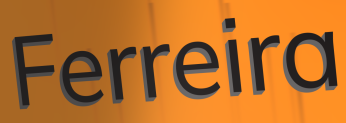
Ferreira